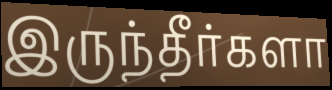
இருந்தீர்களா